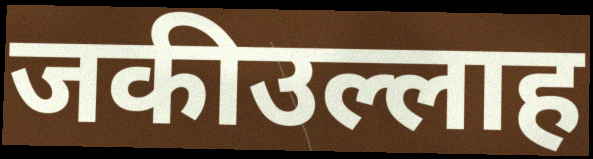
जकीउल्लाह